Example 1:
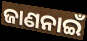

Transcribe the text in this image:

ଜାଣନାଇଁ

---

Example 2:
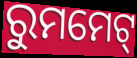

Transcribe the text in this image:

ରୁମମେଟ୍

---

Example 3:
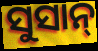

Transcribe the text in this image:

ସୁସାନ୍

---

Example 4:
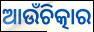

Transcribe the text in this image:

ଆଉଁଚିତ୍କାର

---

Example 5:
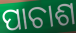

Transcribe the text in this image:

ପାଚାଶ